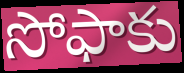
సోఫాకు